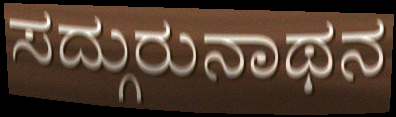
ಸದ್ಗುರುನಾಥನ